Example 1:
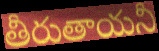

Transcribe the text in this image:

తీరుతాయనీ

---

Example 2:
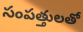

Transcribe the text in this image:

సంపత్తులతో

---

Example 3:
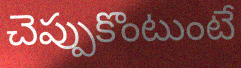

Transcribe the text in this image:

చెప్పుకొంటుంటే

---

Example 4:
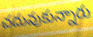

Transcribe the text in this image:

చదువుకున్నారు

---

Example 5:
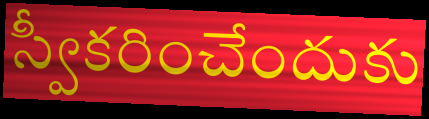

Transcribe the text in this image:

స్వీకరించేందుకు